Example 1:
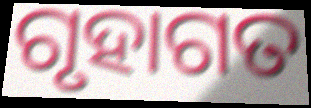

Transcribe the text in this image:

ଗୃହାଗତ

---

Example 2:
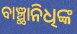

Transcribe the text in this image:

ବାଞ୍ଛାନିଧିଙ୍କ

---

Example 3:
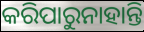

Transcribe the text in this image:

କରିପାରୁନାହାନ୍ତି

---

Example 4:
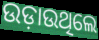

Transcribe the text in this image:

ଉଡ଼ାଉଥିଲେ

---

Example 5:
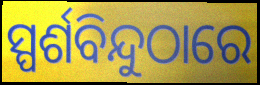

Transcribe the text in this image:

ସ୍ପର୍ଶବିନ୍ଦୁଠାରେ